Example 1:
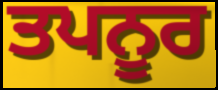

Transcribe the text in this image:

ਤਪਨੂਰ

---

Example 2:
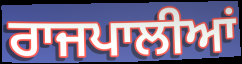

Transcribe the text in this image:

ਰਾਜਪਾਲੀਆਂ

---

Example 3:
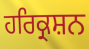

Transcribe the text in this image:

ਹਰਿਕ੍ਰਸ਼ਨ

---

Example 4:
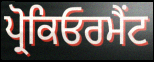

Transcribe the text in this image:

ਪ੍ਰੋਕਿਓਰਮੈਂਟ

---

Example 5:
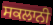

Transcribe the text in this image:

ਸਕਲਾਨੀ